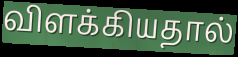
விளக்கியதால்